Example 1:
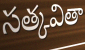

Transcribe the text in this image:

సత్కవితా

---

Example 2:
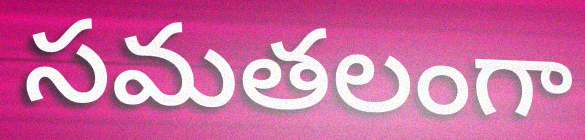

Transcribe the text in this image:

సమతలంగా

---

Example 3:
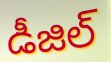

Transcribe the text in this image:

డీజిల్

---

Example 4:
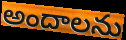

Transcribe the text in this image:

అందాలను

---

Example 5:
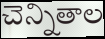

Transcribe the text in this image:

చెన్నితాల